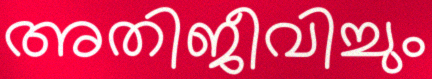
അതിജീവിച്ചും